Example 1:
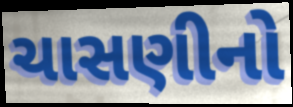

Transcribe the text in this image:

ચાસણીનો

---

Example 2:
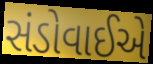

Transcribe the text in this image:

સંડોવાઈએ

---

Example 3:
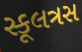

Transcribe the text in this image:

સ્કૂલત્રસ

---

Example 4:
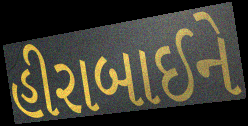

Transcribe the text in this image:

હીરાબાઈને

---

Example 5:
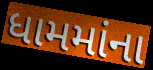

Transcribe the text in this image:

ધામમાંના